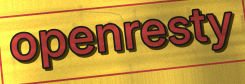
openresty